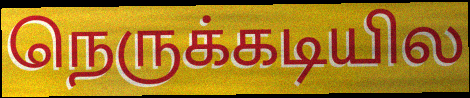
நெருக்கடியில